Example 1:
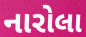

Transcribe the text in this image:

નારોલા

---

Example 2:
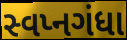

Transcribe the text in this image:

સ્વપ્નગંધા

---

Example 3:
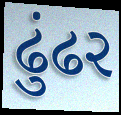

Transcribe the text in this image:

ઢુંઢર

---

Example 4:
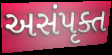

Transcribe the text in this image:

અસંપૃક્ત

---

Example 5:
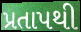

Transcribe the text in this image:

પ્રતાપથી